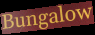
Bungalow